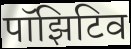
पॉझिटिव